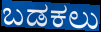
ಬಡಕಲು